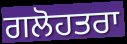
ਗਲੋਹਤਰਾ